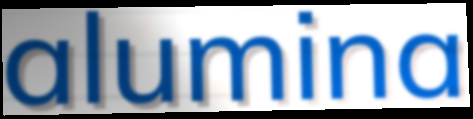
alumina